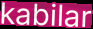
kabilar